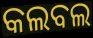
କଲବଲ